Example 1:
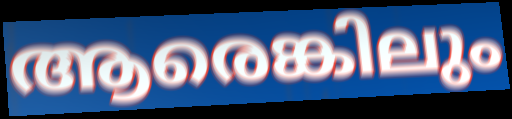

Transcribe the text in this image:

ആരെങ്കിലും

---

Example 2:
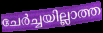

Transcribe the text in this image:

ചേർച്ചയില്ലാത്ത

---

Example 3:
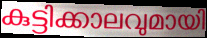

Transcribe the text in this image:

കുട്ടിക്കാലവുമായി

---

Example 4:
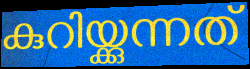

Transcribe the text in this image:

കുറിയ്ക്കുന്നത്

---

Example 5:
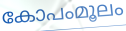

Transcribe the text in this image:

കോപംമൂലം